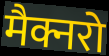
मैक्नरो